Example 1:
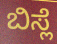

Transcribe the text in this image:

ಬಿಸ್ಲೆ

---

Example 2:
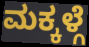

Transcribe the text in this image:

ಮಕ್ಕಳ್ಗೆ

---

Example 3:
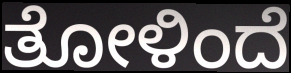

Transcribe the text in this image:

ತೋಳಿಂದೆ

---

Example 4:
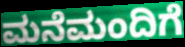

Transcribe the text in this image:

ಮನೆಮಂದಿಗೆ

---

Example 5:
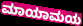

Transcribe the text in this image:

ಮಾಯಾಮಯ